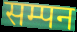
सम्पन